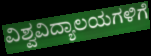
ವಿಶ್ವವಿದ್ಯಾಲಯಗಳಿಗೆ